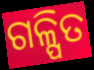
ଗଳ୍ପିତ